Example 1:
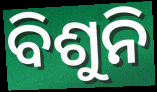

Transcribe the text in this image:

ବିଶୁନି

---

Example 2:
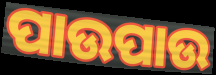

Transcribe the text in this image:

ପାଉପାଉ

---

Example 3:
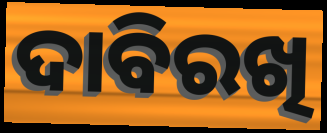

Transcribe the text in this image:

ଦାବିରଖି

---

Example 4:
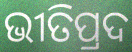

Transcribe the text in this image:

ଭୀତିପ୍ରଦ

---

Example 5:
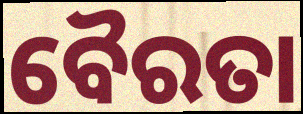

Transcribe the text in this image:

ବୈରତା